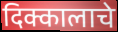
दिक्कालाचे